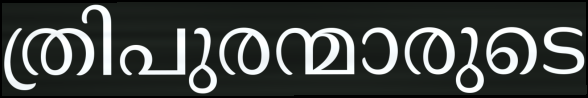
ത്രിപുരന്മാരുടെ